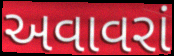
અવાવરાં